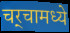
चर्चामध्ये